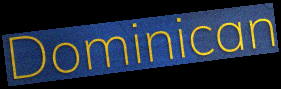
Dominican